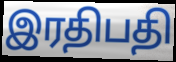
இரதிபதி